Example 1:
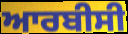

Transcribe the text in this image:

ਆਰਬੀਸੀ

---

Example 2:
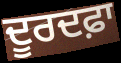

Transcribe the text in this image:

ਦੂਰਦਫ਼ਾ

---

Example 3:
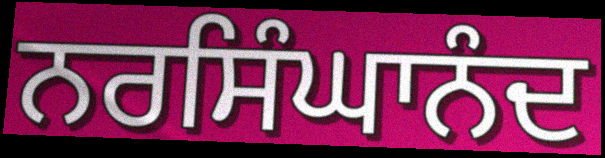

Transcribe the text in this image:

ਨਰਸਿੰਘਾਨੰਦ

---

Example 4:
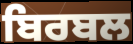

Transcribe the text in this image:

ਬਿਰਬਲ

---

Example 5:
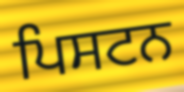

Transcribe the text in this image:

ਪਿਸਟਨ